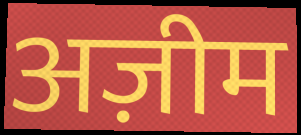
अज़ीम